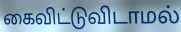
கைவிட்டுவிடாமல்